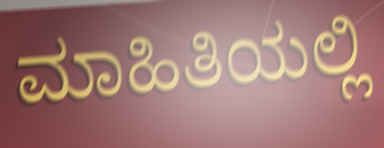
ಮಾಹಿತಿಯಲ್ಲಿ